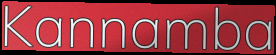
Kannamba